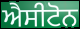
ਐਸੀਟੋਨ